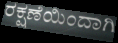
ರಕ್ಷಣೆಯಿಂದಾಗಿ